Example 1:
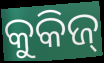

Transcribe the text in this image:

କୁକିଜ୍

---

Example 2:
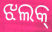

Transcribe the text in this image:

ଝଲକ୍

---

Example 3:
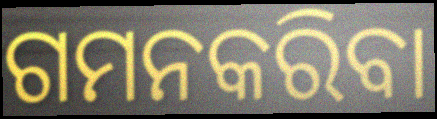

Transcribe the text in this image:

ଗମନକରିବା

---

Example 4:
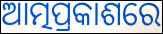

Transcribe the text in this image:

ଆତ୍ମପ୍ରକାଶରେ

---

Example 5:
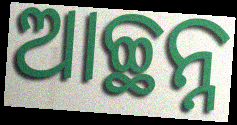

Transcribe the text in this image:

ଆଚ୍ଛନ୍ନ